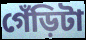
গেঁড়িটা